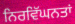
ਨਿਰਵਿੱਘਨਤਾਂ